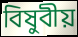
বিষুবীয়